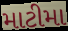
માટીમા